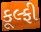
કૂલ્ફી